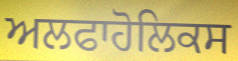
ਅਲਫਾਹੋਲਿਕਸ